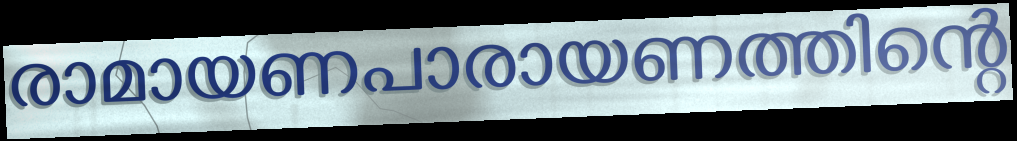
രാമായണപാരായണത്തിന്റെ